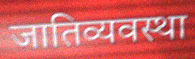
जातिव्यवस्था